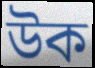
উক